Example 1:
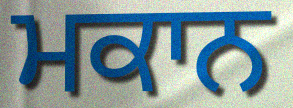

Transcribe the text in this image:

ਮਕਾਨ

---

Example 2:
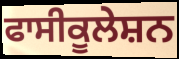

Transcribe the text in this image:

ਫਾਸੀਕੂਲੇਸ਼ਨ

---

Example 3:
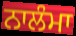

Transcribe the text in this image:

ਨਾਲੰਮਾ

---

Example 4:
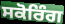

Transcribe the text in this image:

ਸਕੋਰਿੰਗ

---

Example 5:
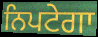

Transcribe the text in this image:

ਨਿਪਟੇਗਾ